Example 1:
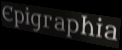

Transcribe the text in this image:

Epigraphia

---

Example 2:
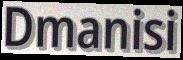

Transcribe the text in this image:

Dmanisi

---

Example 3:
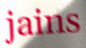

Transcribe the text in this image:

jains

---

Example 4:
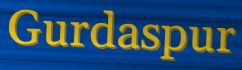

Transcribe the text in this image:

Gurdaspur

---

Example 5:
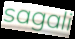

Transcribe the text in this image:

sagali